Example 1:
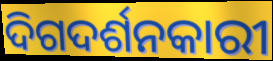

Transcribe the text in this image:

ଦିଗଦର୍ଶନକାରୀ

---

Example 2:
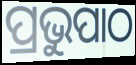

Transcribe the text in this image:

ପ୍ରଭୁପାଠ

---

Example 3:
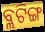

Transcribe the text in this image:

ବ୍ଲଟିଙ୍ଗ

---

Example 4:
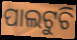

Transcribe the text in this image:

ପାଲଟୁଚି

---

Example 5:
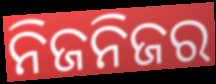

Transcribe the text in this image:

ନିଜନିଜର